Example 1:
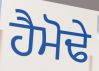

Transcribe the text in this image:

ਹੈਮੋਢੇ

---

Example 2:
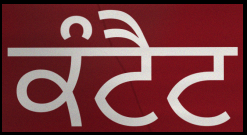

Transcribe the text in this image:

ਕੰਟੈਟ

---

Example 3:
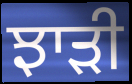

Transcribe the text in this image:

ਝਾੜੀ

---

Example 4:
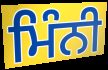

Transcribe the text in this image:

ਮਿੰਨੀ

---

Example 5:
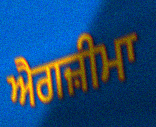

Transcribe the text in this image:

ਐਗਜ਼ੀਮਾ